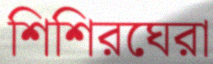
শিশিরঘেরা